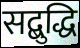
सद्बुद्धि